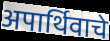
अपार्थिवाचे